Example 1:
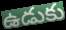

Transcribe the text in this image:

ఉడుకు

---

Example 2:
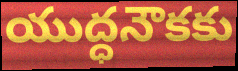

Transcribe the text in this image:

యుద్ధనౌకకు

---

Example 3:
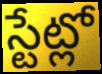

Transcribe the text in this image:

స్టేట్లో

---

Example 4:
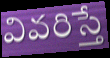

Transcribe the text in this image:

వివరిస్తే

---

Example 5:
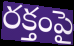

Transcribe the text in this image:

రక్తంపై